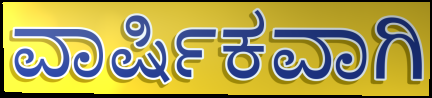
ವಾರ್ಷಿಕವಾಗಿ